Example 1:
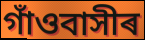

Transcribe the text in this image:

গাঁওবাসীৰ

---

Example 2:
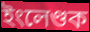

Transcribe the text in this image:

ইংলেণ্ডক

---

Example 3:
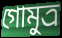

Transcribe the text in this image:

গোমুত্ৰ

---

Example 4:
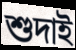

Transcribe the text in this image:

শুদাই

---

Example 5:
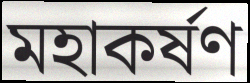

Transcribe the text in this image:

মহাকৰ্ষণ